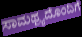
ಸಾಮಥ್ರ್ಯದೊಂದಿಗೆ